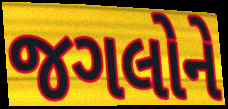
જગલોને